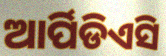
ଆର୍ପିଡିଏସି